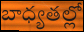
బాధ్యతల్లో